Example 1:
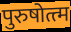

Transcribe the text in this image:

पुरुषोत्त्म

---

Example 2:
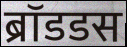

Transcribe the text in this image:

ब्रॉडडस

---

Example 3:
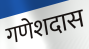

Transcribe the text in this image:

गणेशदास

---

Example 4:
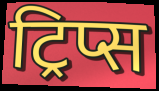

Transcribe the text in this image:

ट्रिप्स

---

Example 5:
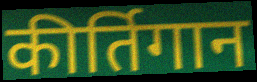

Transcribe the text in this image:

कीर्तिगान